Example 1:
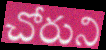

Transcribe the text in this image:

చోరుని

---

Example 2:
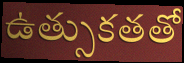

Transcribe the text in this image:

ఉత్సుకతతో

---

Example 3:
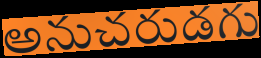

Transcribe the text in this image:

అనుచరుడగు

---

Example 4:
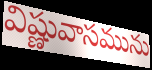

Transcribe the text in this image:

విష్ణువాసమును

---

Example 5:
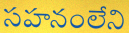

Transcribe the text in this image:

సహనంలేని